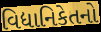
વિદ્યાનિકેતનો